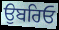
ਉਬਰਿਓ